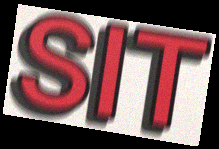
SIT